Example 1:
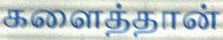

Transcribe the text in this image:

களைத்தான்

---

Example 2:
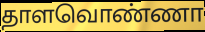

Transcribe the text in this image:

தாளவொண்ணா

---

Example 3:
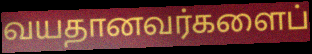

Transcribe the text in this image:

வயதானவர்களைப்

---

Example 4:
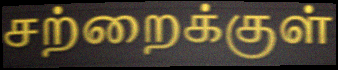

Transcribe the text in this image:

சற்றைக்குள்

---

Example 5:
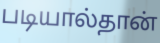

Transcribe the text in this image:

படியால்தான்